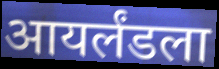
आयर्लंडला